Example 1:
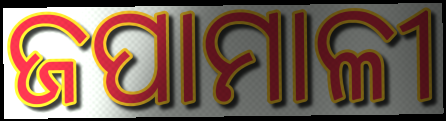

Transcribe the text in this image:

ଜପାମାଳୀ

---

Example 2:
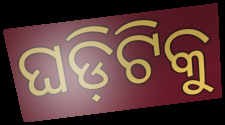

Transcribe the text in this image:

ଘଡ଼ିଟିକୁ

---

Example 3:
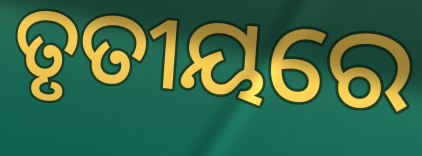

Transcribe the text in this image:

ତୃତୀୟରେ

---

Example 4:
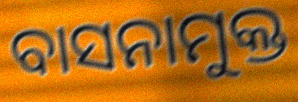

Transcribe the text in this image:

ବାସନାମୁକ୍ତ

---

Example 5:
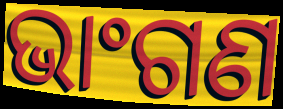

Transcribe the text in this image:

ଭାଂଗଣ